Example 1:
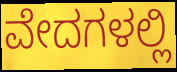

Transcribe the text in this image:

ವೇದಗಳಲ್ಲಿ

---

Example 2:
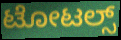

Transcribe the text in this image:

ಟೋಟಲ್ಸ್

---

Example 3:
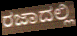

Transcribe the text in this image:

ರಜಾದಲ್ಲಿ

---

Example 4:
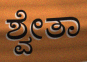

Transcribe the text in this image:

ಶ್ವೇತಾ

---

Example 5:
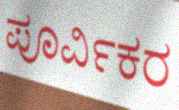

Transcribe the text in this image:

ಪೂರ್ವಿಕರ